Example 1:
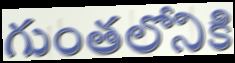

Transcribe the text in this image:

గుంతలోనికి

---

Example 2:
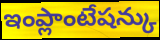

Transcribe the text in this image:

ఇంప్లాంటేషన్కు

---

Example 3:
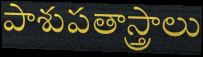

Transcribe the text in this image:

పాశుపతాస్త్రాలు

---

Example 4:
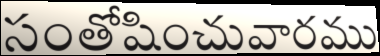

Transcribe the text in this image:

సంతోషించువారము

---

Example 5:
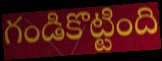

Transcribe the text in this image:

గండికొట్టింది